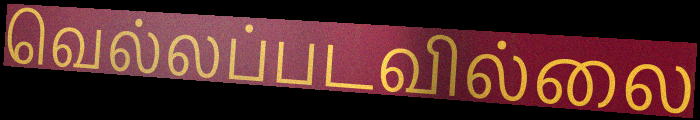
வெல்லப்படவில்லை